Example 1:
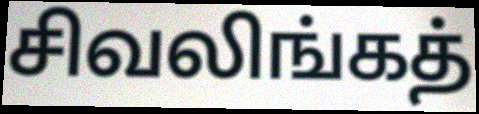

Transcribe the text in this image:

சிவலிங்கத்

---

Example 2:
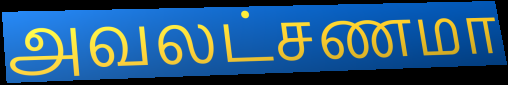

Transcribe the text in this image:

அவலட்சணமா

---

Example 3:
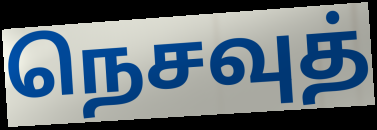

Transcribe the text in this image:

நெசவுத்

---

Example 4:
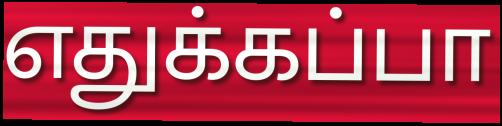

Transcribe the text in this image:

எதுக்கப்பா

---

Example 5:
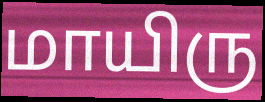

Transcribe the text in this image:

மாயிரு